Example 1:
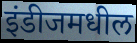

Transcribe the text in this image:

इंडीजमधील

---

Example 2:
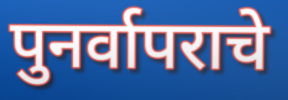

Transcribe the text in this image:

पुनर्वापराचे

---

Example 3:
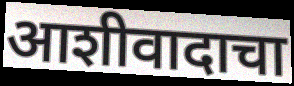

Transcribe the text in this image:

आशीवादाचा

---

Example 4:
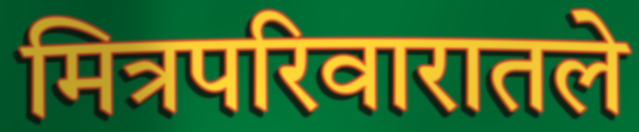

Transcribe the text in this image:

मित्रपरिवारातले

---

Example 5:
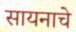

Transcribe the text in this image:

सायनाचे